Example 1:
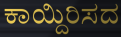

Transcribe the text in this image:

ಕಾಯ್ದಿರಿಸದ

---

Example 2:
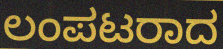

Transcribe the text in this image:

ಲಂಪಟರಾದ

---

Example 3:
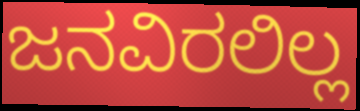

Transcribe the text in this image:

ಜನವಿರಲಿಲ್ಲ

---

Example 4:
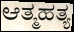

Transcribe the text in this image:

ಆತ್ಮಹತ್ಯ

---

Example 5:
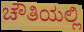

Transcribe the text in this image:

ಚೌತಿಯಲ್ಲಿ